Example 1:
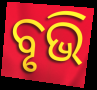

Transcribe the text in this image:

ବୃଭି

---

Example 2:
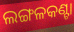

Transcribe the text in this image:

ଲଙ୍ଗଳକଣ୍ଟା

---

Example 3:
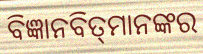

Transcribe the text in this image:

ବିଜ୍ଞାନବିତ୍‌ମାନଙ୍କର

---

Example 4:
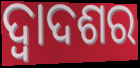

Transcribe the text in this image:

ଦ୍ୱାଦଶର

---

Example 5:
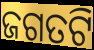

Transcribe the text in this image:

ଜଗତଟି